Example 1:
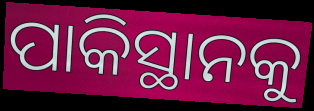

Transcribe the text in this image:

ପାକିସ୍ଥାନକୁ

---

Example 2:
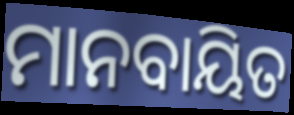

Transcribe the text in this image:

ମାନବାୟିତ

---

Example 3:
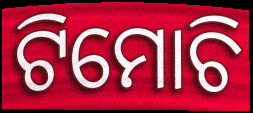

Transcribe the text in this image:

ଟିମୋଚି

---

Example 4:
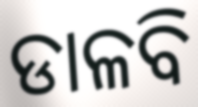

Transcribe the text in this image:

ଡାଳବି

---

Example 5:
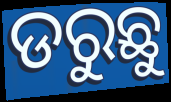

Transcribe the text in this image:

ଡରୁଛୁ